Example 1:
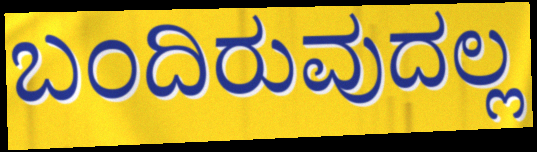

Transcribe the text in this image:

ಬಂದಿರುವುದಲ್ಲ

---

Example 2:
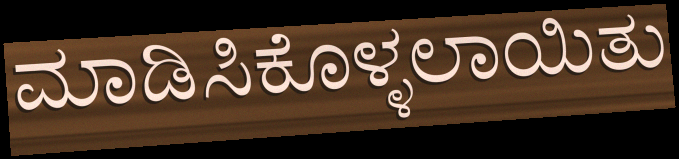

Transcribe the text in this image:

ಮಾಡಿಸಿಕೊಳ್ಳಲಾಯಿತು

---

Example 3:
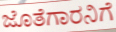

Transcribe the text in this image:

ಜೊತೆಗಾರನಿಗೆ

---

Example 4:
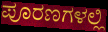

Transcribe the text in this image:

ಪೂರಣಗಳಲ್ಲಿ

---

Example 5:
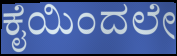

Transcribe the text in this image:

ಕೈಯಿಂದಲೇ